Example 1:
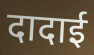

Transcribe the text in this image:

दादाई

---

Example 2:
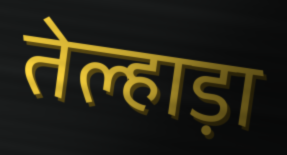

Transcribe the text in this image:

तेल्हाड़ा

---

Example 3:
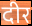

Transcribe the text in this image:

दीर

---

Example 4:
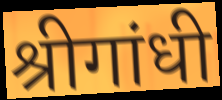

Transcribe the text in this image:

श्रीगांधी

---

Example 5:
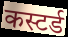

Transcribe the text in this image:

कस्टर्ड